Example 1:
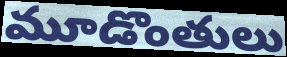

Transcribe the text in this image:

మూడొంతులు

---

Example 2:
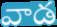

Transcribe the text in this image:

వాడ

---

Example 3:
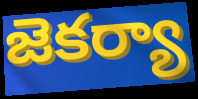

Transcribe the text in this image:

జెకర్యా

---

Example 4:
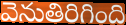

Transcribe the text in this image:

వెనుతిరిగింది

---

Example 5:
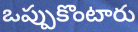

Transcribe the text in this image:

ఒప్పుకొంటారు